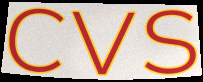
cvs